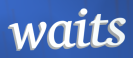
waits